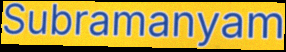
Subramanyam